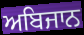
ਅਬਿਜਾਨ